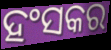
ହଂସକର